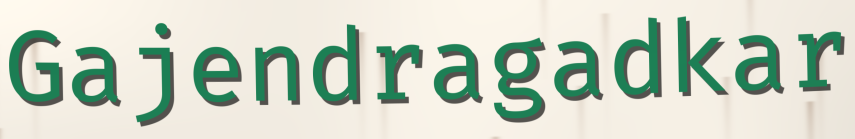
Gajendragadkar